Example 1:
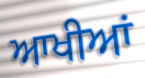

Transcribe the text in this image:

ਆਖੀਆਂ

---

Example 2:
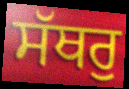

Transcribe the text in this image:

ਸੱਥਰੁ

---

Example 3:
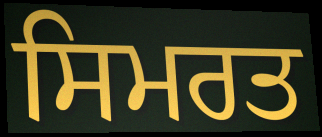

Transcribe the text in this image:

ਸਿਮਰਤ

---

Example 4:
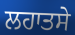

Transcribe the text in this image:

ਲਹਾਤਸੇ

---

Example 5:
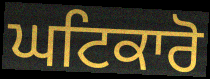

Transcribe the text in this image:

ਘਟਿਕਾਰੋ